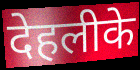
देहलीके